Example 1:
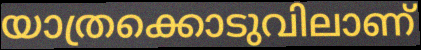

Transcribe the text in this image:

യാത്രക്കൊടുവിലാണ്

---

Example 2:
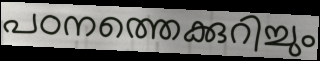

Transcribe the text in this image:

പഠനത്തെക്കുറിച്ചും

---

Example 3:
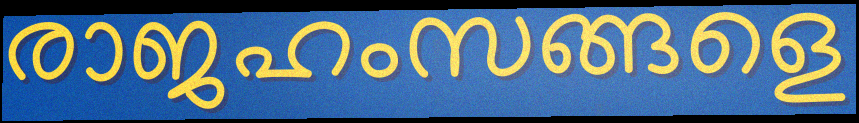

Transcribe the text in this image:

രാജഹംസങ്ങളെ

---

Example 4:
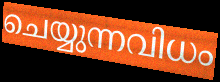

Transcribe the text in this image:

ചെയ്യുന്നവിധം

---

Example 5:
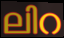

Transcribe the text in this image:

ലിറ